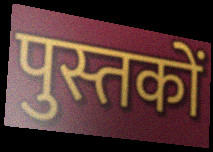
पुस्‍तकों